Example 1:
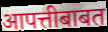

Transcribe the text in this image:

आपत्तीबाबत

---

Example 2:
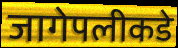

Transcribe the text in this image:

जागेपलीकडे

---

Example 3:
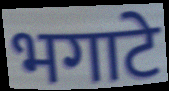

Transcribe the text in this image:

भगाटे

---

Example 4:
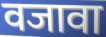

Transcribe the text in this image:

वजावा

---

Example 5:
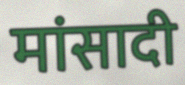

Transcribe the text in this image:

मांसादी